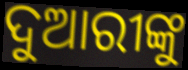
ଦୁଆରୀଙ୍କୁ